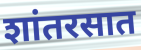
शांतरसात